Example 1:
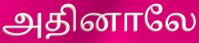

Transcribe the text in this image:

அதினாலே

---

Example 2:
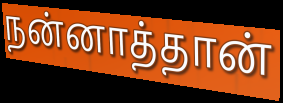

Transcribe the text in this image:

நன்னாத்தான்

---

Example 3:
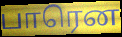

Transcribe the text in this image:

பாரென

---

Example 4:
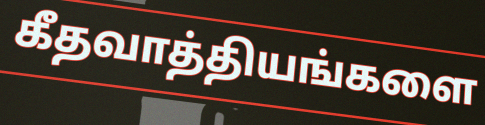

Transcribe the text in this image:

கீதவாத்தியங்களை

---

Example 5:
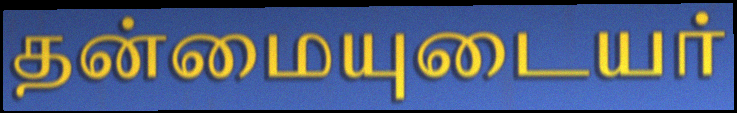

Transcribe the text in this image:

தன்மையுடையர்